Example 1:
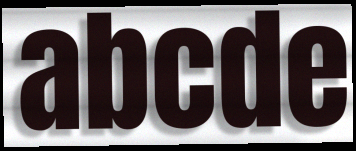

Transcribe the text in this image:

abcde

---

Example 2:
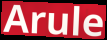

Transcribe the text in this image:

Arule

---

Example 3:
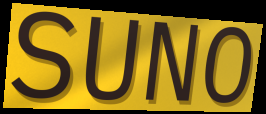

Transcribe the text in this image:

SUNO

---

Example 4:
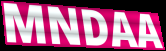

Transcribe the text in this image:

MNDAA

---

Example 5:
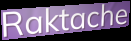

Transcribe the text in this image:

Raktache